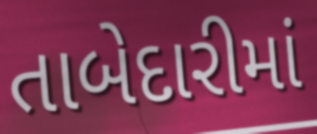
તાબેદારીમાં